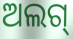
ଅଲଗ୍